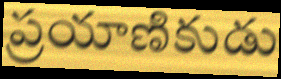
ప్రయాణికుడు